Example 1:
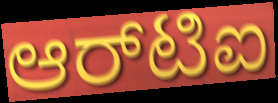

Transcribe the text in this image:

ಆರ್‌ಟಿಐ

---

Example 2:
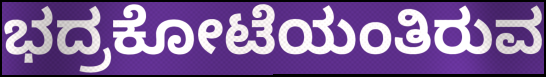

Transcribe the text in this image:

ಭದ್ರಕೋಟೆಯಂತಿರುವ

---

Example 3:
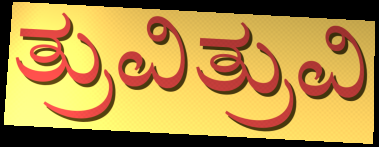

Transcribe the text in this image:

ತ್ರುವಿತ್ರುವಿ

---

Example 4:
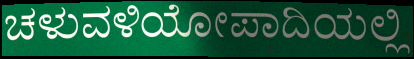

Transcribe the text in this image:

ಚಳುವಳಿಯೋಪಾದಿಯಲ್ಲಿ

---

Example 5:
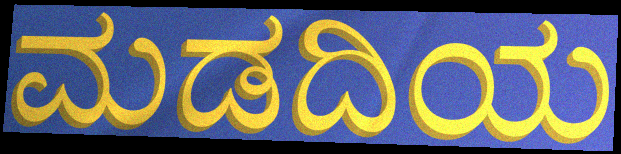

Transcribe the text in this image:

ಮಡದಿಯ